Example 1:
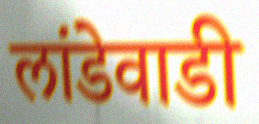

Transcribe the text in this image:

लांडेवाडी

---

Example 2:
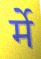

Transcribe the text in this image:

र्मे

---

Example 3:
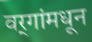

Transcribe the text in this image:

वर्गांमधून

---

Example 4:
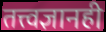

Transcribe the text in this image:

तत्त्वज्ञानही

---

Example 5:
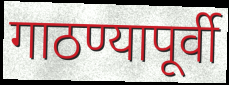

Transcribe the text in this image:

गाठण्यापूर्वी